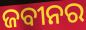
ଜବୀନର